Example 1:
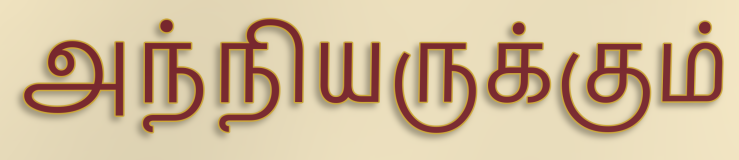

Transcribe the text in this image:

அந்நியருக்கும்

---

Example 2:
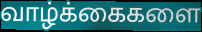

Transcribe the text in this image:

வாழ்க்கைகளை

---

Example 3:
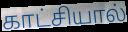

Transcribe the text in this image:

காட்சியால்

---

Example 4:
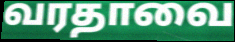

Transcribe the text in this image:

வரதாவை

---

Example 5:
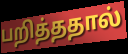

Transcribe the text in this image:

பறித்ததால்